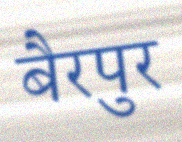
बैरपुर